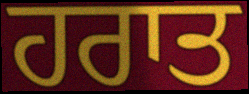
ਹਰਾਤ